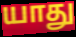
யாது